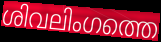
ശിവലിംഗത്തെ